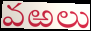
వఱలు